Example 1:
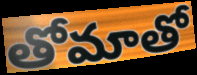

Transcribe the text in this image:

తోమాతో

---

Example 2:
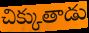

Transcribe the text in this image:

చిక్కుతాడు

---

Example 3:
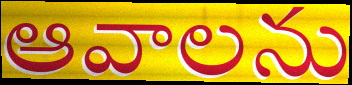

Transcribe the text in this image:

ఆవాలను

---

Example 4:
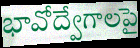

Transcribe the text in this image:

భావోద్వేగాలపై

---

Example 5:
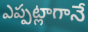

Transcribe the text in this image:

ఎప్పట్లాగానే